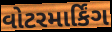
વોટરમાર્કિંગ